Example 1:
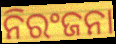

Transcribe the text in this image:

ନିରଂଜନା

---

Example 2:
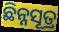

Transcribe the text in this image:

ଛିନ୍ନସୂତ୍ର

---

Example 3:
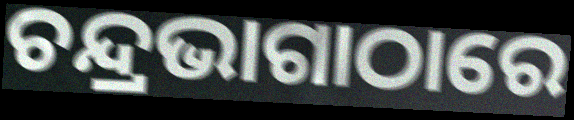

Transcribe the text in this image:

ଚନ୍ଦ୍ରଭାଗାଠାରେ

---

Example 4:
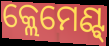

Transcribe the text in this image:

କ୍ଲେମେଣ୍ଟ୍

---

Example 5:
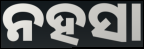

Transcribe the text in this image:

ନହସା